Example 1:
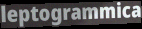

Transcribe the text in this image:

leptogrammica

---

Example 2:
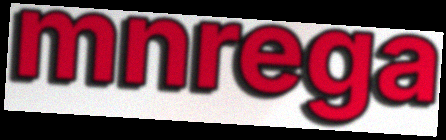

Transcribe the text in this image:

mnrega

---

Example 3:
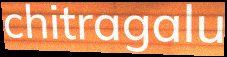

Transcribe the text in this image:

chitragalu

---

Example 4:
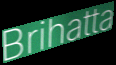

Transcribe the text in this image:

Brihatta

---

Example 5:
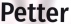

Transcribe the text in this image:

Petter